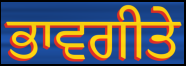
ਭਾਵਗੀਤੇ